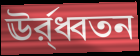
ঊর্র্ধ্বতন